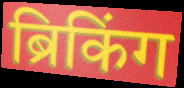
ब्रिकिंग